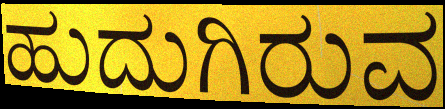
ಹುದುಗಿರುವ